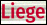
Liege